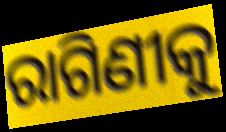
ରାଗିଣୀକୁ